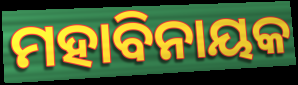
ମହାବିନାୟକ